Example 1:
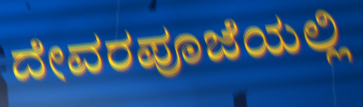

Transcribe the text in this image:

ದೇವರಪೂಜೆಯಲ್ಲಿ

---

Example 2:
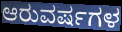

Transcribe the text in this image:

ಆರುವರ್ಷಗಳ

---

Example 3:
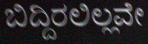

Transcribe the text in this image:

ಬಿದ್ದಿರಲಿಲ್ಲವೇ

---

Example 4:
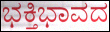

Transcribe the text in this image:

ಭಕ್ತಿಭಾವದ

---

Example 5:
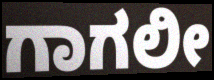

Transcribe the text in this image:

ಗಾಗಲೀ